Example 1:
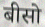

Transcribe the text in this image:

बीसो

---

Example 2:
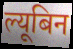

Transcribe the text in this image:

ल्यूबिन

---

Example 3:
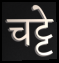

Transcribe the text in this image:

चट्टे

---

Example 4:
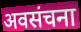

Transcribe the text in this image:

अवसंचना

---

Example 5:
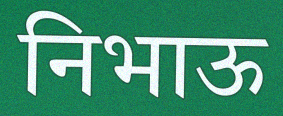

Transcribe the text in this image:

निभाऊ